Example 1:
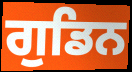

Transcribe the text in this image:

ਗੁਡਿਨ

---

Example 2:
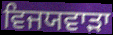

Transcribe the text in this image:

ਵਿਜਯਵਾੜਾ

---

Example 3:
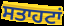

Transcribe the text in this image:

ਸਤਾਹਟਾਂ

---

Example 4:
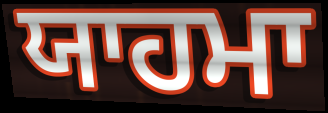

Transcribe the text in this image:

ਯਾਹਮਾ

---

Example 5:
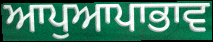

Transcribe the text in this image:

ਆਪੁਆਪਾਭਾਵ